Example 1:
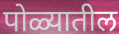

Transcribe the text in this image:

पोळ्यातील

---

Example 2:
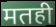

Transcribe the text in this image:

मतही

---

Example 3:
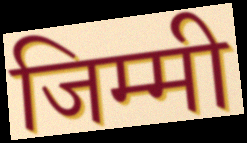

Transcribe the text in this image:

जिम्मी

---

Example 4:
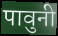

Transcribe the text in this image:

पावुनी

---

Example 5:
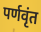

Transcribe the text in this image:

पर्णवृंत